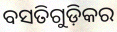
ବସତିଗୁଡ଼ିକର